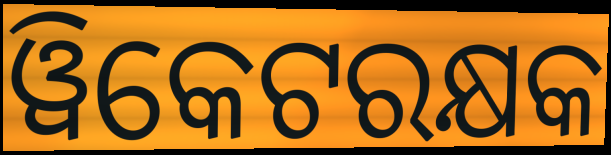
ୱିକେଟରକ୍ଷକ